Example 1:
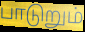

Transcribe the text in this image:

பாடுறும்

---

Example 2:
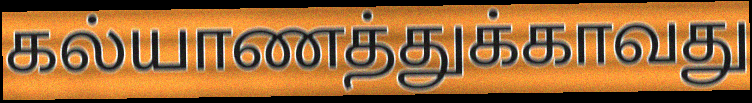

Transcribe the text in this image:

கல்யாணத்துக்காவது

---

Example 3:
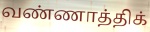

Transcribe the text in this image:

வண்ணாத்திக்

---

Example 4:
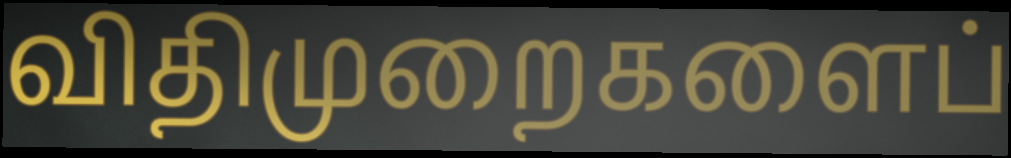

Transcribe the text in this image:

விதிமுறைகளைப்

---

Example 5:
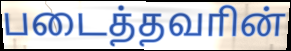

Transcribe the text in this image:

படைத்தவரின்